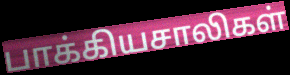
பாக்கியசாலிகள்